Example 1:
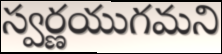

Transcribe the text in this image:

స్వర్ణయుగమని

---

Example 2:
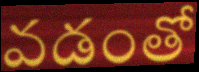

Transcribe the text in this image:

వడంతో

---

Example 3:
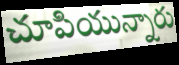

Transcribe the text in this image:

చూపియున్నారు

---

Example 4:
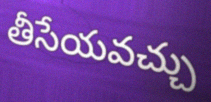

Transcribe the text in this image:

తీసేయవచ్చు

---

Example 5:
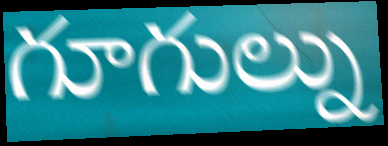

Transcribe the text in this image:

గూగుల్ను